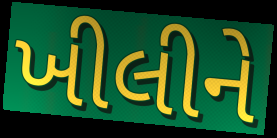
ખીલીને